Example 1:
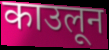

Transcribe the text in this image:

काउलून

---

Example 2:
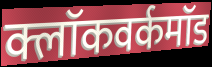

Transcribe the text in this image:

क्लॉकवर्कमॉड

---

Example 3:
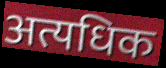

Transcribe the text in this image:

अत्‍यधिक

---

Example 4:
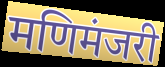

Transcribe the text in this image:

मणिमंजरी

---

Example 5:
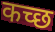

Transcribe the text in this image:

कच्‍छ